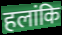
हलांकि